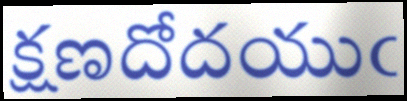
క్షణదోదయుఁ